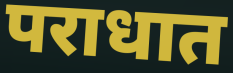
पराधात